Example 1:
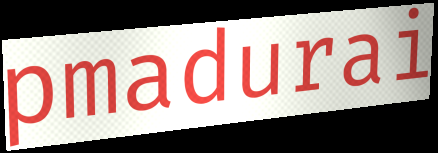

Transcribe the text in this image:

pmadurai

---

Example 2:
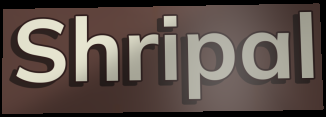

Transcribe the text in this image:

Shripal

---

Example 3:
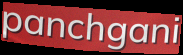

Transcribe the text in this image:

panchgani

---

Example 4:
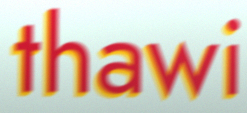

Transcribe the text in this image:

thawi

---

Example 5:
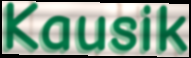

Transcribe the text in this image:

Kausik